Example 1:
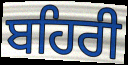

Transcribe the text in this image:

ਬਹਿਰੀ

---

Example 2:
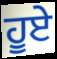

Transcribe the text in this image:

ਹੂਏ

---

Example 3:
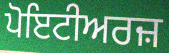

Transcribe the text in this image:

ਪੋਇਟੀਅਰਜ਼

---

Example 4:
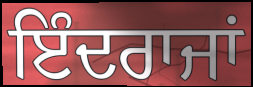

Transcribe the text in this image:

ਇੰਦਰਾਜਾਂ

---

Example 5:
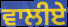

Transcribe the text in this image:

ਵਾਲੀਏ